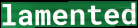
lamented